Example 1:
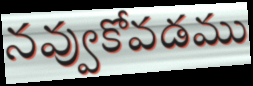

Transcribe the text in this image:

నవ్వుకోవడము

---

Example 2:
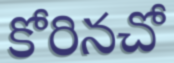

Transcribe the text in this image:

కోరినచో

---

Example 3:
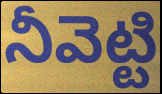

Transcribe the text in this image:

నీవెట్టి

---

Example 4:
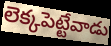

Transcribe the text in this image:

లెక్కపెట్టేవాడు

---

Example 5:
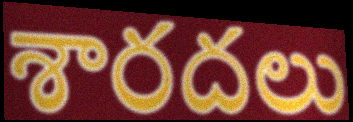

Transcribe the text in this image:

శారదలు